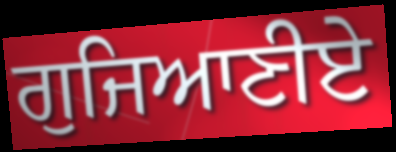
ਗੁਜਿਆਣੀਏ